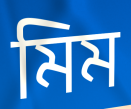
মিম